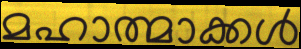
മഹാത്മാക്കൾ